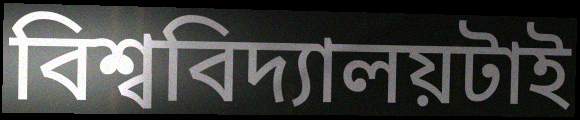
বিশ্ববিদ্যালয়টাই